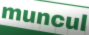
muncul